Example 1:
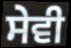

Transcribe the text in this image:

ਸੇਵੀ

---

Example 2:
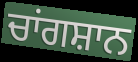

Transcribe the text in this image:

ਚਾਂਗਸ਼ਾਨ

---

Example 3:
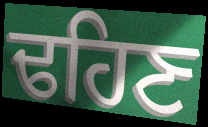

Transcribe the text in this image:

ਢਹਿਣ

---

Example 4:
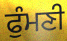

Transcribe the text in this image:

ਫੁੰਮਣੀ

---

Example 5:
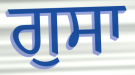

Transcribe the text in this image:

ਗੁਸਾ